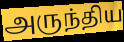
அருந்திய